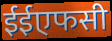
ईईएफसी